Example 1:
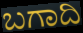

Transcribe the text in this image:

ಬಗಾದಿ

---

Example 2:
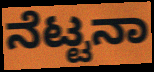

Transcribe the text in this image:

ನೆಟ್ಟನಾ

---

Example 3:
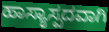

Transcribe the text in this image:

ಹಾಸ್ಯಾಸ್ಪದವಾಗಿ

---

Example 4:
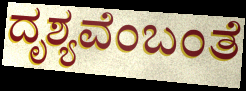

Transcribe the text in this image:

ದೃಶ್ಯವೆಂಬಂತೆ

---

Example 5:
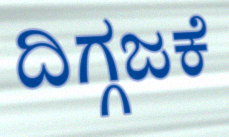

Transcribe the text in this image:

ದಿಗ್ಗಜಕೆ